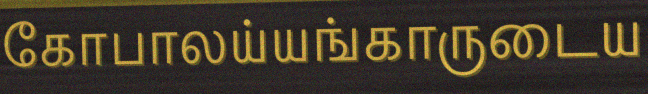
கோபாலய்யங்காருடைய